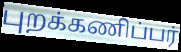
புறக்கணிப்பர்